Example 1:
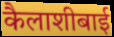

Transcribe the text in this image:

कैलाशीबाई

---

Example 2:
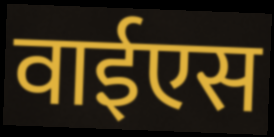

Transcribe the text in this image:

वाईएस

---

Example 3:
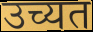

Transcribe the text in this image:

उच्यत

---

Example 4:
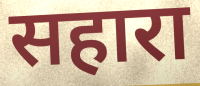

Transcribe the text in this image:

सहारा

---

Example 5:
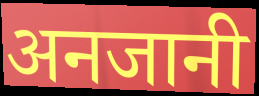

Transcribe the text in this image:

अनजानी